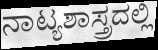
ನಾಟ್ಯಶಾಸ್ತ್ರದಲ್ಲಿ